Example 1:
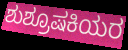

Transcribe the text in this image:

ಶುಶ್ರೂಷಕಿಯರ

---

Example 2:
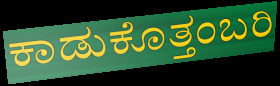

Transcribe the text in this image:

ಕಾಡುಕೊತ್ತಂಬರಿ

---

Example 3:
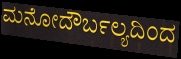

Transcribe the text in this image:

ಮನೋದೌರ್ಬಲ್ಯದಿಂದ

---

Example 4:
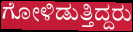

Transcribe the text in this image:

ಗೋಳಿಡುತ್ತಿದ್ದರು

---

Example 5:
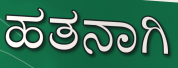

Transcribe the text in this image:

ಹತನಾಗಿ